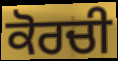
ਕੋਰਚੀ